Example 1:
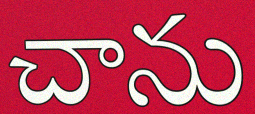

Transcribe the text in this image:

చాను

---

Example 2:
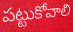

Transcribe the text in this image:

పట్టుకోవాలి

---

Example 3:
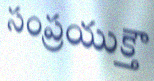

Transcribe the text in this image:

సంప్రయుక్తౌ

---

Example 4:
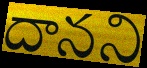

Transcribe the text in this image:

దానని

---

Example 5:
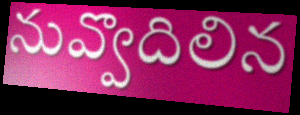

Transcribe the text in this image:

నువ్వొదిలిన